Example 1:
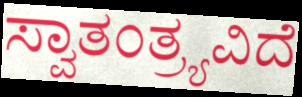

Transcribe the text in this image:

ಸ್ವಾತಂತ್ರ್ಯವಿದೆ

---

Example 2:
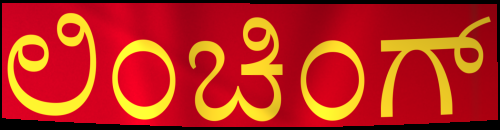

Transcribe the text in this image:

ಲಿಂಚಿಂಗ್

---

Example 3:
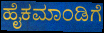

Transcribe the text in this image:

ಹೈಕಮಾಂಡಿಗೆ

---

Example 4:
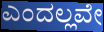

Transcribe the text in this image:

ಎಂದಲ್ಲವೇ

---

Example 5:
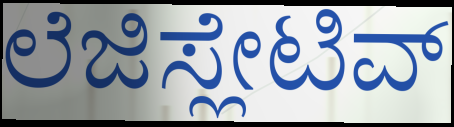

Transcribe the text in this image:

ಲೆಜಿಸ್ಲೇಟಿವ್